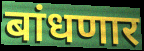
बांधणार